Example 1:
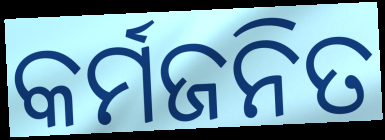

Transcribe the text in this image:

କର୍ମଜନିତ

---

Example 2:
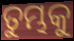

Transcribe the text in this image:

ତୁମ୍ଭକୁ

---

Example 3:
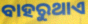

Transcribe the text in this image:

ବାହରୁଥାଏ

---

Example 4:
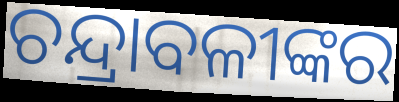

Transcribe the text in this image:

ଚନ୍ଦ୍ରାବଳୀଙ୍କର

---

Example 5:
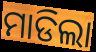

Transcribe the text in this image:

ମାଡିଲା